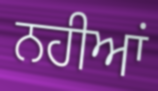
ਨਹੀਆਂ